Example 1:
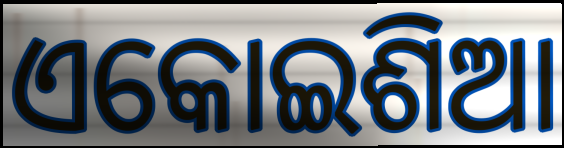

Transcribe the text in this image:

ଏକୋଇଶିଆ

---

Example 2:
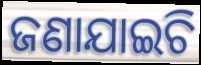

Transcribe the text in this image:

ଜଣାଯାଇଚି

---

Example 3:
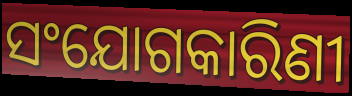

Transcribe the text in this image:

ସଂଯୋଗକାରିଣୀ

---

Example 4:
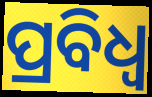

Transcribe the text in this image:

ପ୍ରବିଧ୍ଵ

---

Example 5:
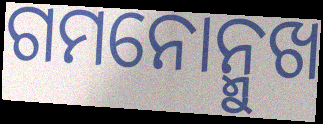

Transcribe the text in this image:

ଗମନୋନ୍ମୁଖ